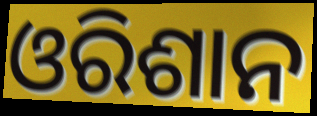
ଓରିଶାନ